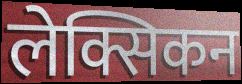
लेक्सिकन